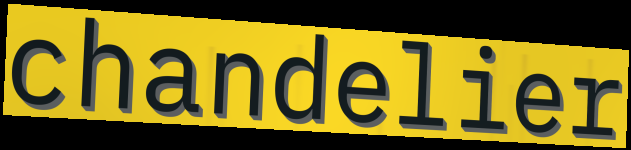
chandelier